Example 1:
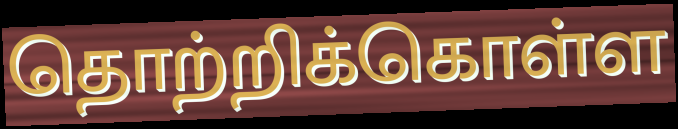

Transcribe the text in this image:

தொற்றிக்கொள்ள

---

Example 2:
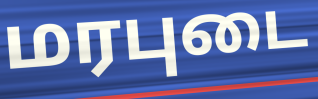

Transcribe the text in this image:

மரபுடை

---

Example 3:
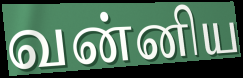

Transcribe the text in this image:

வன்னிய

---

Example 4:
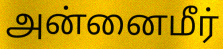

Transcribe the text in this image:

அன்னைமீர்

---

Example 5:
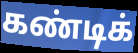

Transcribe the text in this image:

கண்டிக்